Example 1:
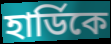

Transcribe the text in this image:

হার্ডিকে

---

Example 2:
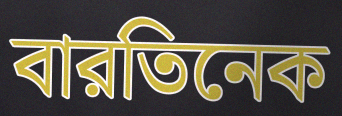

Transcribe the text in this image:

বারতিনেক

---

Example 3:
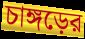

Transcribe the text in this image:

চাঙ্গড়ের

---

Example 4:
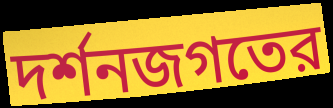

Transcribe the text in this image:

দর্শনজগতের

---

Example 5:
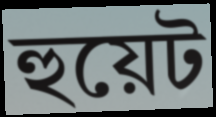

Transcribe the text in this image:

হুয়েট